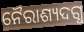
ନୈରାଶ୍ୟଦଗ୍ଧ